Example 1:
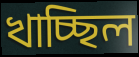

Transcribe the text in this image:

খাচ্ছিল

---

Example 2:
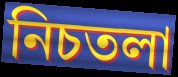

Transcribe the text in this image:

নিচতলা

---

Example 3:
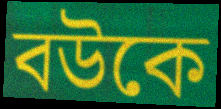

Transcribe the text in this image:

বউকে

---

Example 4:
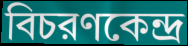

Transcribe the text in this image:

বিচরণকেন্দ্র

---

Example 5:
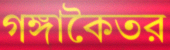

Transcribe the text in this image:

গঙ্গাকৈতর